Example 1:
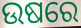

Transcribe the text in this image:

ଉଷରେ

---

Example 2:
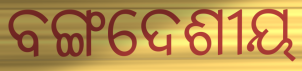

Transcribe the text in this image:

ବଙ୍ଗଦେଶୀୟ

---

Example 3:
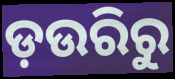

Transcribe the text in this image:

ଡ଼ଉରିରୁ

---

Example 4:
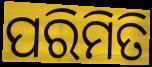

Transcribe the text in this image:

ପରିମିତି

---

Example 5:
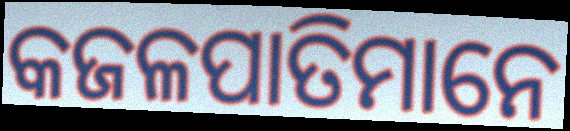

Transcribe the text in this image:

କଜଳପାତିମାନେ